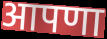
आपणा